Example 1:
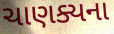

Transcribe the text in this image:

ચાણક્યના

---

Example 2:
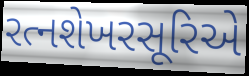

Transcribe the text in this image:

રત્નશેખરસૂરિએ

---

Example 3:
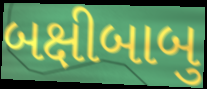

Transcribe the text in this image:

બક્ષીબાબુ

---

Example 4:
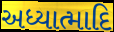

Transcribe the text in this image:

અધ્યાત્માદિ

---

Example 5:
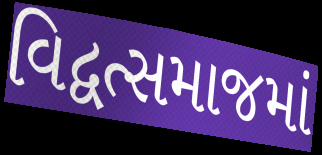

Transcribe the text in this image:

વિદ્વત્સમાજમાં